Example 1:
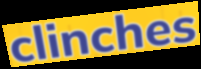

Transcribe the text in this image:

clinches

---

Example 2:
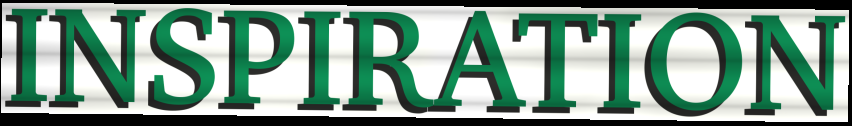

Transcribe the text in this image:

INSPIRATION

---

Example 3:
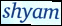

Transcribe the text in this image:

shyam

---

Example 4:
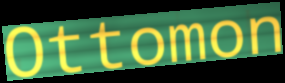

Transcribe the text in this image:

Ottomon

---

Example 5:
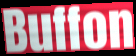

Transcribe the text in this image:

Buffon